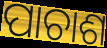
ପାଚାଶ